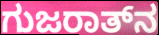
ಗುಜರಾತ್‌ನ